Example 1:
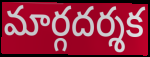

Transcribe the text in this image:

మార్గదర్శక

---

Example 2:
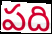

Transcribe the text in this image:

పది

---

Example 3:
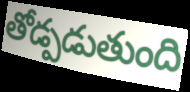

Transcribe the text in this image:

తోడ్పడుతుంది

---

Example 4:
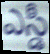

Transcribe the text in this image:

ఎస్డీ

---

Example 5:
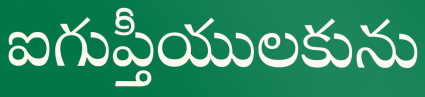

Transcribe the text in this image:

ఐగుప్తీయులకును